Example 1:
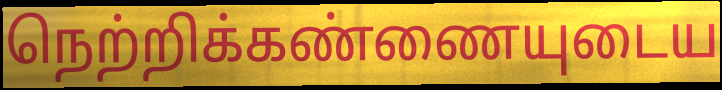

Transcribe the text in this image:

நெற்றிக்கண்ணையுடைய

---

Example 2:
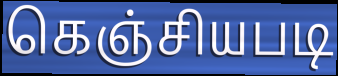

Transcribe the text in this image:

கெஞ்சியபடி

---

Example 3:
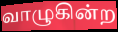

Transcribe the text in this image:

வாழுகின்ற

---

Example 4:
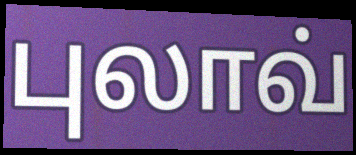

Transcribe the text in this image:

புலாவ்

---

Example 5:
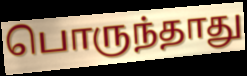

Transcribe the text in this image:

பொருந்தாது